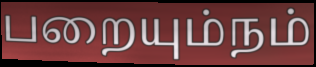
பறையும்நம்